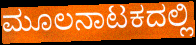
ಮೂಲನಾಟಕದಲ್ಲಿ